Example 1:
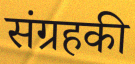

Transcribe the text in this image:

संग्रहकी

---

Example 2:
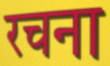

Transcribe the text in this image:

रचना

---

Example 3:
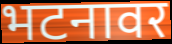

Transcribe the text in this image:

भटनावर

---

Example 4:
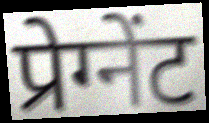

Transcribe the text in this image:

प्रेग्नेंट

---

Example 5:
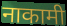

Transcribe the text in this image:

नाकामी